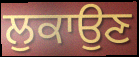
ਲੁਕਾਉਣ